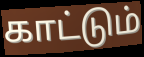
காட்டும்